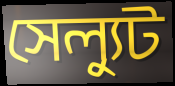
সেল্যুট